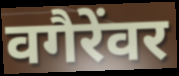
वगैरेंवर